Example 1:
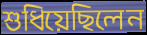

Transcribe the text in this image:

শুধিয়েছিলেন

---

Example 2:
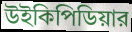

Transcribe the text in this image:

উইকিপিডিয়ার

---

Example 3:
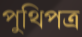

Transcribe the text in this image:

পুথিপত্র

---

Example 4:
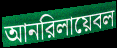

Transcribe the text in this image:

আনরিলায়েবল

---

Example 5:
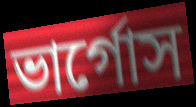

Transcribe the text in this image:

ভার্গোস